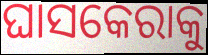
ଘାସକେରାକୁ